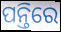
ପନ୍ତିରେ